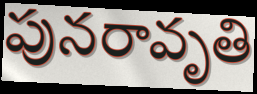
పునరావృతి